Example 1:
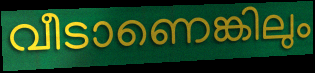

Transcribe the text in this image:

വീടാണെങ്കിലും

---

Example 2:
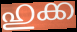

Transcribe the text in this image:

ഹുക്ക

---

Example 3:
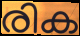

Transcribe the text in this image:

രിക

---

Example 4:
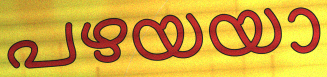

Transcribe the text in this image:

പഴയയാ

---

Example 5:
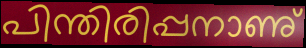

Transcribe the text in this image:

പിന്തിരിപ്പനാണു്